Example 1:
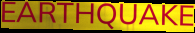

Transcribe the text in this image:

EARTHQUAKE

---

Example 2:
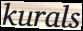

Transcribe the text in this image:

kurals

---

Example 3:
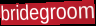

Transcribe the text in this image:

bridegroom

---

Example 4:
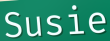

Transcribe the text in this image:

Susie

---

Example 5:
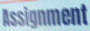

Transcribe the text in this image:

Assignment